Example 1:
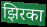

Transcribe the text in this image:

झिरका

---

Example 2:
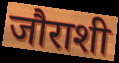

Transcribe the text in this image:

जौराशी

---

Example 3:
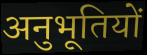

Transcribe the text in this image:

अनुभूतियों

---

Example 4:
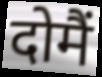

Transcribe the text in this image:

दोमैं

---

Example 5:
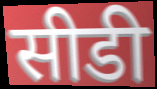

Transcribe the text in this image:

सीडी